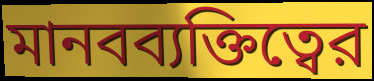
মানবব্যক্তিত্বের